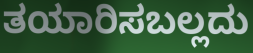
ತಯಾರಿಸಬಲ್ಲದು